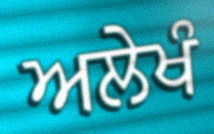
ਅਲੇਖੰ